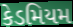
કેડમિયમ